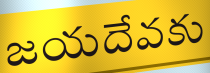
జయదేవకు